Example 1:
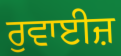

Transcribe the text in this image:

ਰੁਵਾਈਜ਼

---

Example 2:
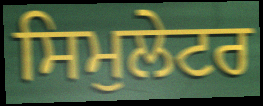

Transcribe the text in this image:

ਸਿਮੁਲੇਟਰ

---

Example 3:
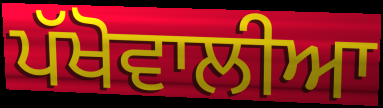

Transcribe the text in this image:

ਪੱਖੋਵਾਲੀਆ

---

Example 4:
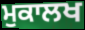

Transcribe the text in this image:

ਮੁਕਾਲਖ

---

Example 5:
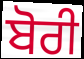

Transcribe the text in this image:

ਬੋਰੀ